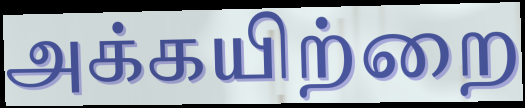
அக்கயிற்றை